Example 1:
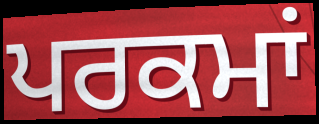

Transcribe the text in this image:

ਪਰਕਮਾਂ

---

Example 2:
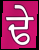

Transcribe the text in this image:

ਢੇ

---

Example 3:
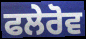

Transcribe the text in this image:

ਫਲੇਰੋਵ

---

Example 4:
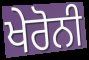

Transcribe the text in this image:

ਖੇਰੋਨੀ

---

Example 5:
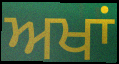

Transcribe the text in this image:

ਅਖਾਂ